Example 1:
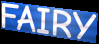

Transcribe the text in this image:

FAIRY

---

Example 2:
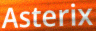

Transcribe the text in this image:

Asterix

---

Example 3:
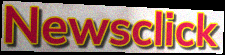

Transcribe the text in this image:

Newsclick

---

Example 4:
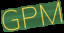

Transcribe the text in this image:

GPM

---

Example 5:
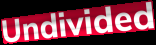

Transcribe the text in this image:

Undivided